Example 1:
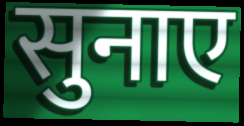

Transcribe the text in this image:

सुनाए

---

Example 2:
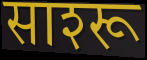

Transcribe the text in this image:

साश्रू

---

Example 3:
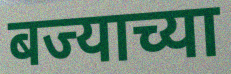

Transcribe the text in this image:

बज्याच्या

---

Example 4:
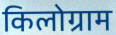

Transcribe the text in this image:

किलोग्राम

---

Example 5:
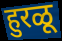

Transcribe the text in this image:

हुरळू